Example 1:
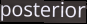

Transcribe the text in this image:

posterior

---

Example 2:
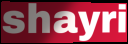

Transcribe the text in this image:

shayri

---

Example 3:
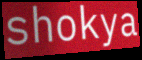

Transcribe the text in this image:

shokya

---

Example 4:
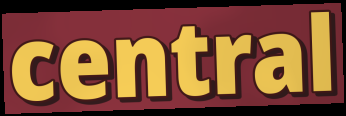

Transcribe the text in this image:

central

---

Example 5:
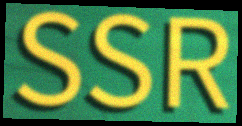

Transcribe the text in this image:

SSR